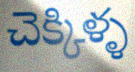
చెక్కిళ్ళ